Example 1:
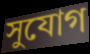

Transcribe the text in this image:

সুযোগ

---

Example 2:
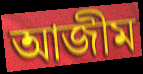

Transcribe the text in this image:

আজীম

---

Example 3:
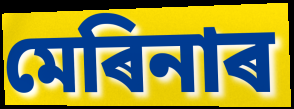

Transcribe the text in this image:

মেৰিনাৰ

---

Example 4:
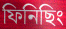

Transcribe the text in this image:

ফিনিছিং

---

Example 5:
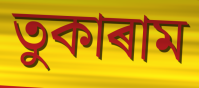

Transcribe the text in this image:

তুকাৰাম